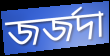
জর্জদা